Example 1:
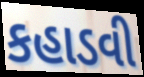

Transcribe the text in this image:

કહાડવી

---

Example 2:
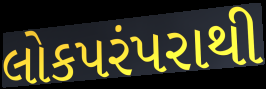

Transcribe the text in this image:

લોકપરંપરાથી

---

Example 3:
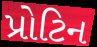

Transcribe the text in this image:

પ્રોટિન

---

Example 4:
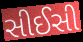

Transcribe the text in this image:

સીઈસી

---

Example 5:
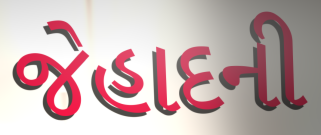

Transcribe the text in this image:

જેહાદની